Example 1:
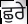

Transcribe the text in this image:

ਛੁਰੇ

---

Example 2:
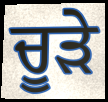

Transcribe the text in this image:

ਚੂੜੇ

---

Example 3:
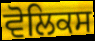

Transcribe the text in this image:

ਵੋਲਿਕਸ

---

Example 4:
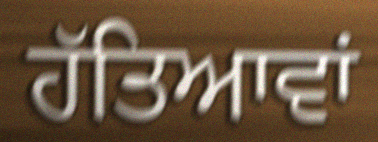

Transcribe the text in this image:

ਹੱਤਿਆਵਾਂ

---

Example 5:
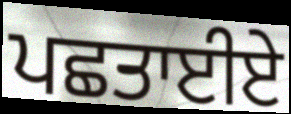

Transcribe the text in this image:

ਪਛਤਾਈਏ